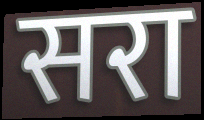
सरा